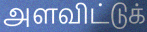
அளவிட்டுக்